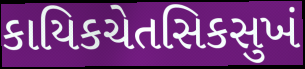
કાયિકચેતસિકસુખં